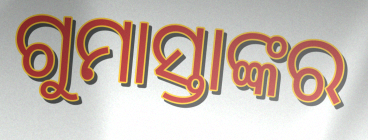
ଗୁମାସ୍ତାଙ୍କର